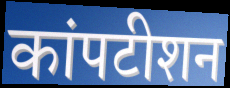
कांपटीशन